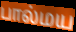
பால்மய